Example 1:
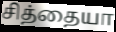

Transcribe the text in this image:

சித்தையா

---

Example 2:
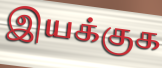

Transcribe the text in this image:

இயக்குக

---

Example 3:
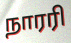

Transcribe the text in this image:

நாரரி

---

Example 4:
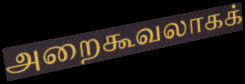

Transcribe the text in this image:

அறைகூவலாகக்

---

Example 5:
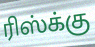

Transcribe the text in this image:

ரிஸ்க்கு